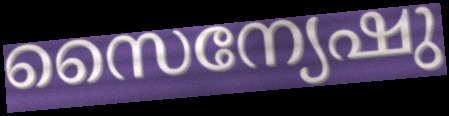
സൈന്യേഷു